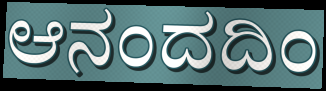
ಆನಂದದಿಂ